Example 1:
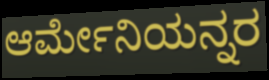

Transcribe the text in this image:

ಆರ್ಮೇನಿಯನ್ನರ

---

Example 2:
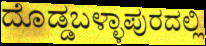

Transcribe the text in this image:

ದೊಡ್ಡಬಳ್ಳಾಪುರದಲ್ಲಿ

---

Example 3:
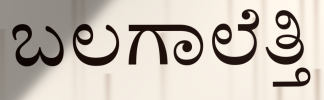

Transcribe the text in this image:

ಬಲಗಾಲೆತ್ತಿ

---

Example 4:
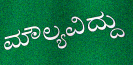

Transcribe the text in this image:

ಮೌಲ್ಯವಿದ್ದು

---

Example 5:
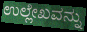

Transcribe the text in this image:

ಉಲ್ಲೇಖವನ್ನು